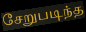
சேறுபடிந்த